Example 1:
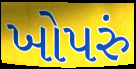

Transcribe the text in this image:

ખોપરું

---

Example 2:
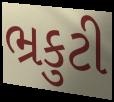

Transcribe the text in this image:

ભ્રકુટી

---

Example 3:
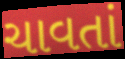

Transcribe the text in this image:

ચાવતાં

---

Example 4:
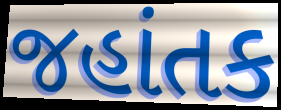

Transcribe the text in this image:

જહાંતક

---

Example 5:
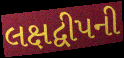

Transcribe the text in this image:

લક્ષદ્વીપની